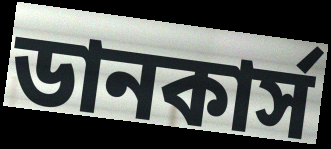
ডানকার্স